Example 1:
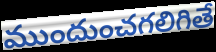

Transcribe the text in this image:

ముందుంచగలిగితే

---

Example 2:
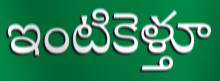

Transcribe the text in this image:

ఇంటికెళ్తూ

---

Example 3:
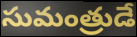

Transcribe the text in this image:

సుమంత్రుడే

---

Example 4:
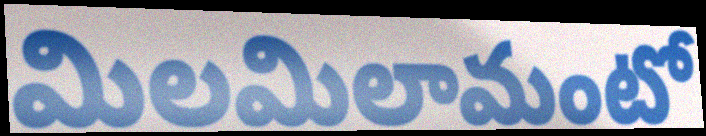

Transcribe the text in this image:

మిలమిలామంటో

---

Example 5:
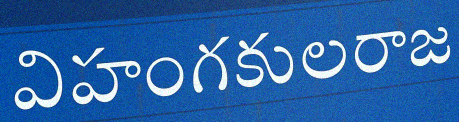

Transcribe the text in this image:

విహంగకులరాజ